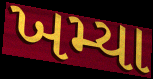
ખમ્યા